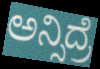
ಅನ್ಸಿದ್ರೆ